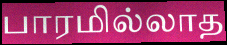
பாரமில்லாத